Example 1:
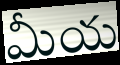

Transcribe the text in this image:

మీయ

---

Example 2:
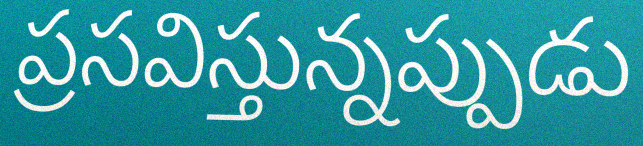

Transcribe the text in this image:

ప్రసవిస్తున్నప్పుడు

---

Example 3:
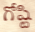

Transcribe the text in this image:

గోష్టి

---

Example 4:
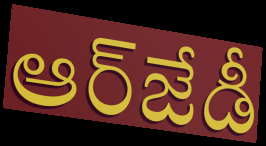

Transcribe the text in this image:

ఆర్‌జేడీ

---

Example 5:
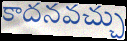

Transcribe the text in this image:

కాదనవచ్చు